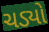
ચડ્યો